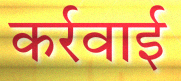
कर्रवाई